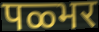
पळ्भर